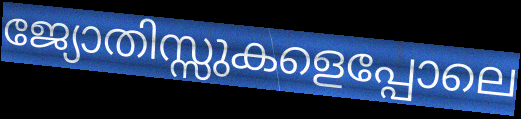
ജ്യോതിസ്സുകളെപ്പോലെ